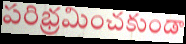
పరిభ్రమించకుండా